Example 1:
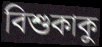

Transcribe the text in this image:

বিশুকাকু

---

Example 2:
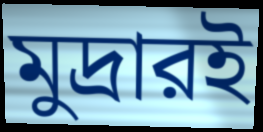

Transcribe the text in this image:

মুদ্রারই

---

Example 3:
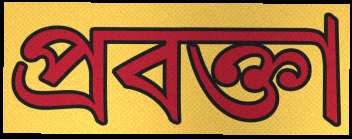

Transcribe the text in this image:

প্রবক্তা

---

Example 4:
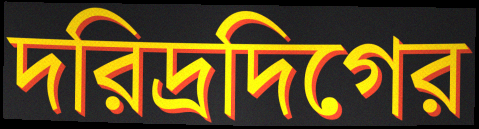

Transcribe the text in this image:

দরিদ্রদিগের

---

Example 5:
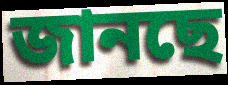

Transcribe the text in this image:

জানছে